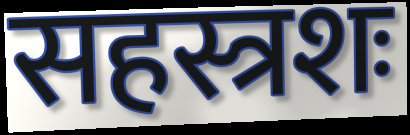
सहस्त्रशः